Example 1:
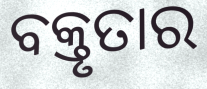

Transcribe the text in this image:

ବକ୍ତୃତାର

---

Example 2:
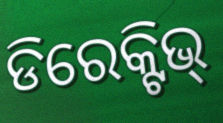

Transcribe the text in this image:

ଡିରେକ୍ଟିଭ୍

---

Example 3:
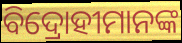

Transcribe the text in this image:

ବିଦ୍ରୋହୀମାନଙ୍କ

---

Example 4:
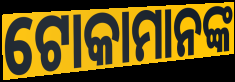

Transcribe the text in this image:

ଟୋକାମାନଙ୍କ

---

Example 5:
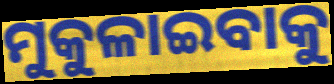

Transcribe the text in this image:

ମୁକୁଳାଇବାକୁ